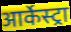
आर्केस्ट्रा